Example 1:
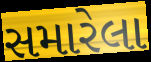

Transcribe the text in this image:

સમારેલા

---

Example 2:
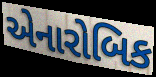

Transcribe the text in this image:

એનારોબિક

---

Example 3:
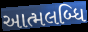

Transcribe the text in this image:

આત્મલબ્ધિ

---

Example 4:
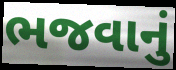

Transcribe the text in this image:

ભજવાનું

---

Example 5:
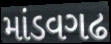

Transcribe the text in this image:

માંડવગઢ